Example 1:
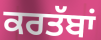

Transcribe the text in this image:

ਕਰਤੱਬਾਂ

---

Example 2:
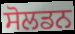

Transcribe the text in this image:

ਸੋਲਡਨ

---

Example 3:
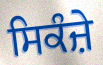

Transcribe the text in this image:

ਸਿਕੰਜ਼ੇ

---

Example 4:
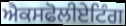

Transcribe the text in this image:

ਐਕਸਫੋਲੀਏਟਿੰਗ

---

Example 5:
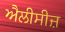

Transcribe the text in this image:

ਐਲੀਸੀਜ਼